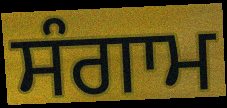
ਸੰਗਾਮ